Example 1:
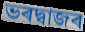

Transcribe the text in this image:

ভৰদ্বাজৰ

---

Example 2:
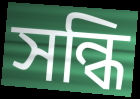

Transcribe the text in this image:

সন্ধি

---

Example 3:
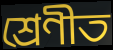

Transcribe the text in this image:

শ্ৰেণীত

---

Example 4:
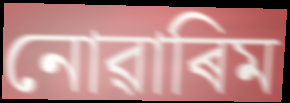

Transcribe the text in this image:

নোৱাৰিম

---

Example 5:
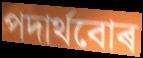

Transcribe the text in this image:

পদাৰ্থবোৰ